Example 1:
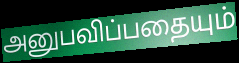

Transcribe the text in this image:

அனுபவிப்பதையும்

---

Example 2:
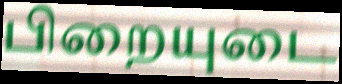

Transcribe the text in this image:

பிறையுடை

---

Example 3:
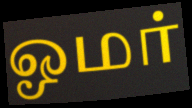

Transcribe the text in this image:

ஓமர்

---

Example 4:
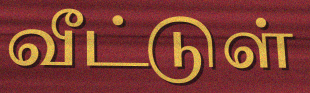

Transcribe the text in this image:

வீட்டுள்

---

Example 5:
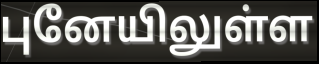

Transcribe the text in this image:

புனேயிலுள்ள